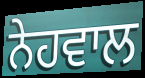
ਨੇਹਵਾਲ